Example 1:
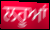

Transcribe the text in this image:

ਲਹੂਆਂ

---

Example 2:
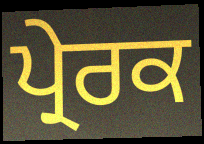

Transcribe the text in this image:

ਪ੍ਰੇਰਕ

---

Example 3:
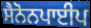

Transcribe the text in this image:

ਸੈਨੋਨਪਾਈਪ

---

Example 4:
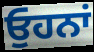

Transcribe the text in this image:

ਓੁਹਨਾਂ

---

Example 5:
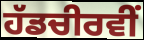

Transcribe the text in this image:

ਹੱਡਚੀਰਵੀਂ